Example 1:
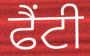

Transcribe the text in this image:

ਫੈਂਟੀ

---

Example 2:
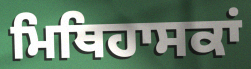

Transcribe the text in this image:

ਮਿਥਿਹਾਸਕਾਂ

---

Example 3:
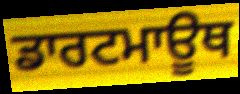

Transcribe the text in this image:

ਡਾਰਟਮਾਊਥ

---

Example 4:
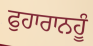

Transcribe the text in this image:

ਫੁਹਾਰਾਨਹੂੰ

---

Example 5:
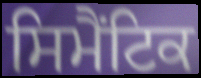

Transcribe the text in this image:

ਸਿਮੈਂਟਿਕ